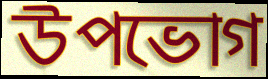
উপভোগ